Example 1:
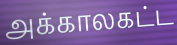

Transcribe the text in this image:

அக்காலகட்ட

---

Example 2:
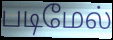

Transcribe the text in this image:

படிமேல்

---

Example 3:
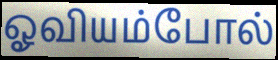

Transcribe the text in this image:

ஓவியம்போல்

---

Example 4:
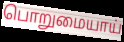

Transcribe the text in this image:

பொறுமையாய்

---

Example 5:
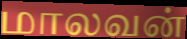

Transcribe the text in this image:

மாலவன்